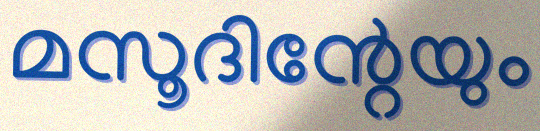
മസൂദിന്റേയും